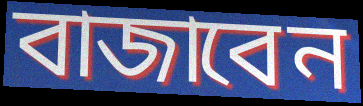
বাজাবেন